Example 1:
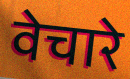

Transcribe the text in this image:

वेचारे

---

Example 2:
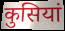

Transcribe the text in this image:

कुसियां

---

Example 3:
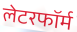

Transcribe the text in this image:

लेटरफॉर्म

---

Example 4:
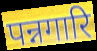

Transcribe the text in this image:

पन्नगारि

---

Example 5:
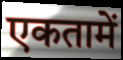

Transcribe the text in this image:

एकतामें